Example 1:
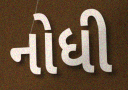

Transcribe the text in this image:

નોધી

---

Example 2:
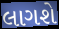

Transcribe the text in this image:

લાગશે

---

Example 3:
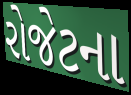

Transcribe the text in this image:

રોજેટના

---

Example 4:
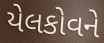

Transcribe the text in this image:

યેલકોવને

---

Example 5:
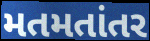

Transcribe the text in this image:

મતમતાંતર